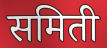
समिती